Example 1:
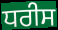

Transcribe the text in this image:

ਧਰੀਸ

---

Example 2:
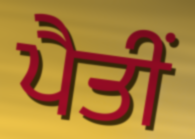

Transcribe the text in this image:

ਪੈਤੀਂ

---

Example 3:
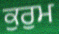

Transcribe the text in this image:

ਕੁਰੁਮ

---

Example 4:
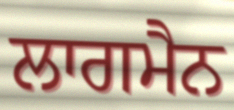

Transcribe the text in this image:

ਲਾਗਮੈਨ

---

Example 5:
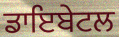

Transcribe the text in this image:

ਡਾਇਬੇਟਲ